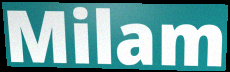
Milam